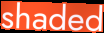
shaded